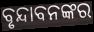
ବୃନ୍ଦାବନଙ୍କର